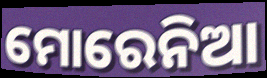
ମୋରେନିଆ